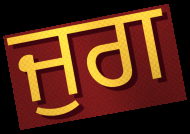
ਜੁਗ